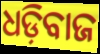
ଧଡ଼ିବାଜ